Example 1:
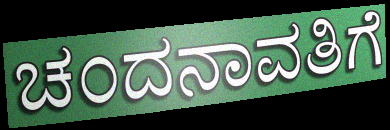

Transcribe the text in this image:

ಚಂದನಾವತಿಗೆ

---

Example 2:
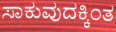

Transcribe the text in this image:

ಸಾಕುವುದಕ್ಕಿಂತ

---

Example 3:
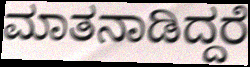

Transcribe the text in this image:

ಮಾತನಾಡಿದ್ದರೆ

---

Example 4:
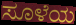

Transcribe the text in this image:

ಸೂಳೆಯ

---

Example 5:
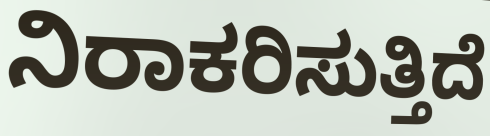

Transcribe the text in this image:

ನಿರಾಕರಿಸುತ್ತಿದೆ